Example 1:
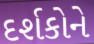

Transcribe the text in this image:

દર્શકોને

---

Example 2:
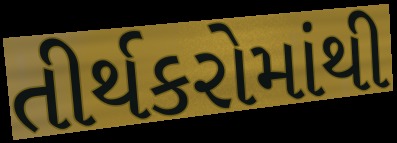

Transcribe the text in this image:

તીર્થકરોમાંથી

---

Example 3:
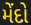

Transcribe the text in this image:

મેંદો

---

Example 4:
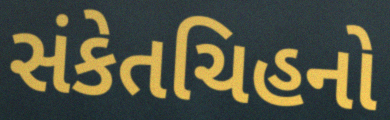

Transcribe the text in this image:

સંકેતચિહનો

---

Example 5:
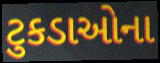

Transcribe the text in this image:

ટુકડાઓના